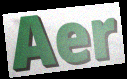
Aer